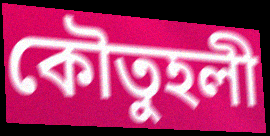
কৌতুহলী